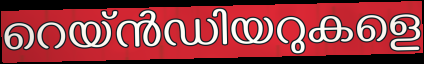
റെയ്ൻഡിയറുകളെ